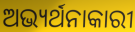
ଅଭ୍ୟର୍ଥନାକାରୀ